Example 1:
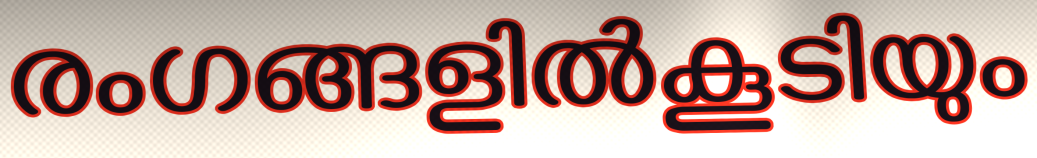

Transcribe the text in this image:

രംഗങ്ങളിൽകൂടിയും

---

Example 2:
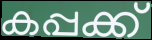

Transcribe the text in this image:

കപ്പക്ക്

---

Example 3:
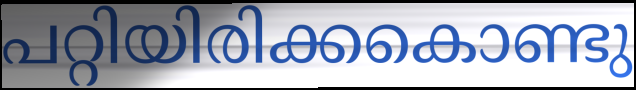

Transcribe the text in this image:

പറ്റിയിരിക്കകൊണ്ടു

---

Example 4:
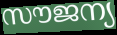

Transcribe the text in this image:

സൗജന്യ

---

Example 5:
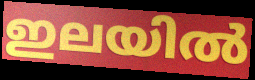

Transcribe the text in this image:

ഇലയിൽ